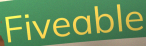
Fiveable